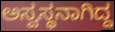
ಅಸ್ವಸ್ಥನಾಗಿದ್ದ